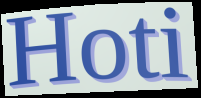
Hoti